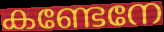
കണ്ടേനേ